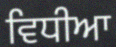
ਵਿਧੀਆ